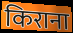
किराना